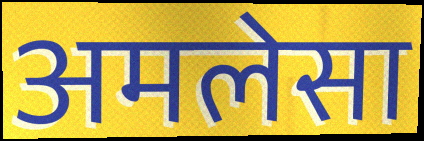
अमलेसा